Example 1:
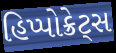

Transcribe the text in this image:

હિપ્પોક્રેટ્સ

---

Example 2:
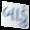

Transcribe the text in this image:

બાડું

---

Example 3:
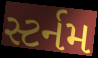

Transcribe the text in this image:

સ્ટર્નમ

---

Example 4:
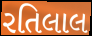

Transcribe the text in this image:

રતિલાલ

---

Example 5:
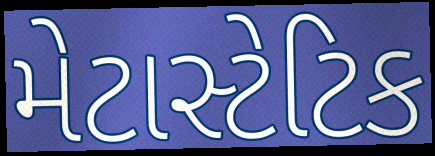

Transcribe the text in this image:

મેટાસ્ટેટિક